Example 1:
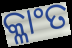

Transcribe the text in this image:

କ୍ଳାଂତ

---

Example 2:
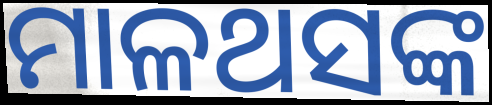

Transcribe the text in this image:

ମାଳଥସଙ୍କ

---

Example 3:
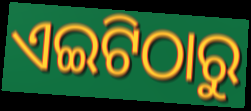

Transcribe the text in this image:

ଏଇଟିଠାରୁ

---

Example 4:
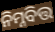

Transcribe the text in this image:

ନିମ୍ନବିତ୍ତ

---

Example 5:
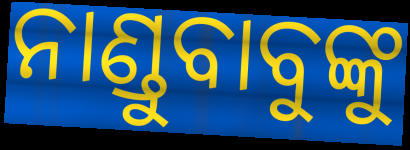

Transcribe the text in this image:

ନାଣ୍ଡୁବାବୁଙ୍କୁ